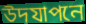
উদযাপনে